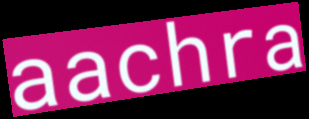
aachra